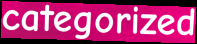
categorized